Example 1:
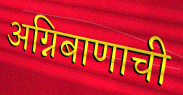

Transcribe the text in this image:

अग्निबाणाची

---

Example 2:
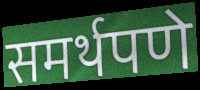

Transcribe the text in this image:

समर्थपणे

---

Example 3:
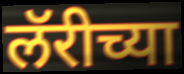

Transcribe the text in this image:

लॅरीच्या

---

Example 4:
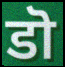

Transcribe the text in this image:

डॊ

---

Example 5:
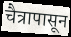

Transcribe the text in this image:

चैत्रापासून